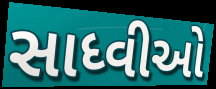
સાધ્વીઓ